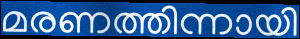
മരണത്തിന്നായി